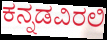
ಕನ್ನಡವಿರಲಿ